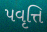
પવૃત્તિ